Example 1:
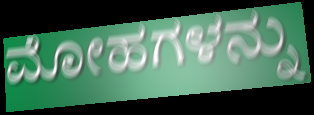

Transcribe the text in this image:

ಮೋಹಗಳನ್ನು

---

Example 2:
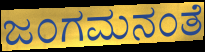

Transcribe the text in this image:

ಜಂಗಮನಂತೆ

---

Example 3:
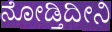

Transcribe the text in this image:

ನೋಡ್ತಿದೀನಿ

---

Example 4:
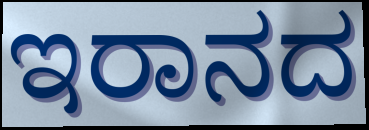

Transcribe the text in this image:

ಇರಾನದ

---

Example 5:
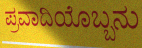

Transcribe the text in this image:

ಪ್ರವಾದಿಯೊಬ್ಬನು